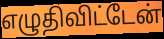
எழுதிவிட்டேன்